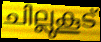
ചില്ലുകൂട്